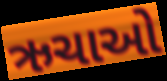
ઋચાઓ